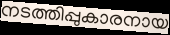
നടത്തിപ്പുകാരനായ